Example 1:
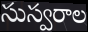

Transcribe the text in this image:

సుస్వరాల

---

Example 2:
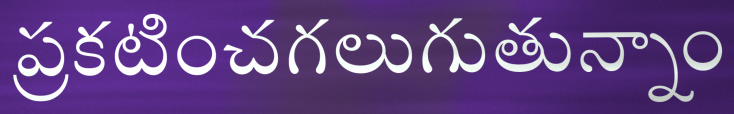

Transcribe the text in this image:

ప్రకటించగలుగుతున్నాం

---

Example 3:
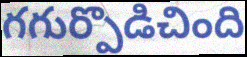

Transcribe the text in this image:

గగుర్పొడిచింది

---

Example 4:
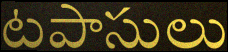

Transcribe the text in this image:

టపాసులు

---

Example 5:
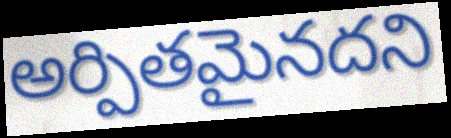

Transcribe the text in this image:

అర్పితమైనదని